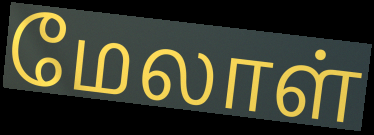
மேலாள்